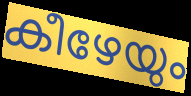
കീഴേയും